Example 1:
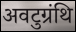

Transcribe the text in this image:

अवटुग्रंथि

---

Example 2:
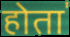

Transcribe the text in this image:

होता॑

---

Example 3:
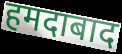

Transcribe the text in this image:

हमदाबाद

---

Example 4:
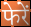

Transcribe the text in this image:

फेरें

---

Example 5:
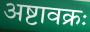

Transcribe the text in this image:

अष्टावक्रः